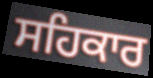
ਸਹਿਕਾਰ